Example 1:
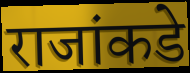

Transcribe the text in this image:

राजांकडे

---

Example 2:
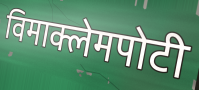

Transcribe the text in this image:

विमाक्लेमपोटी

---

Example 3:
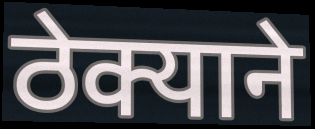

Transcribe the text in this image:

ठेक्याने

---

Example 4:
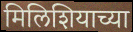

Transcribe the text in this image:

मिलिशियाच्या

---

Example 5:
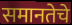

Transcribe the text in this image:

समानतेचे